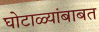
घोटाळ्यांबाबत